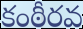
కంఠీరవ